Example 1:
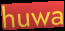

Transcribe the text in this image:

huwa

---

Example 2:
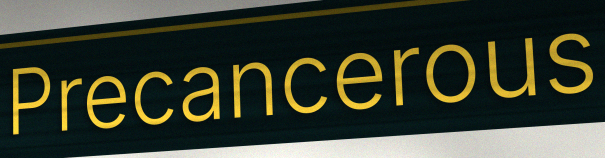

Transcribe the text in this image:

Precancerous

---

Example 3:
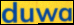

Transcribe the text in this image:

duwa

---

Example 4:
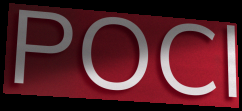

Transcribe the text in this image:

POCl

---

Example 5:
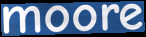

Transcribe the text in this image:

moore